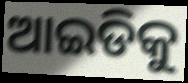
ଆଇଡିକୁ